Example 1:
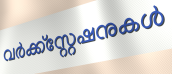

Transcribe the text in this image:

വർക്ക്സ്റ്റേഷനുകൾ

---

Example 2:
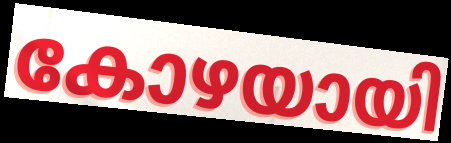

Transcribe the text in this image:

കോഴയായി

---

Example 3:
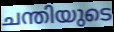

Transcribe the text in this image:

ചന്തിയുടെ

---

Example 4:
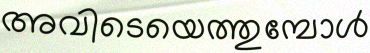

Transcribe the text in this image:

അവിടെയെത്തുമ്പോൾ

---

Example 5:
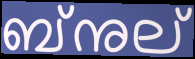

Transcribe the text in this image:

ബ്നുല്